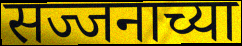
सज्जनाच्या